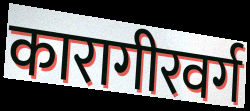
कारागीरवर्ग